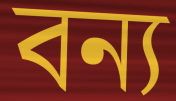
বন্য